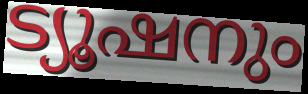
ട്യൂഷനും